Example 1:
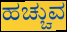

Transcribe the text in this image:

ಹಚ್ಚುವ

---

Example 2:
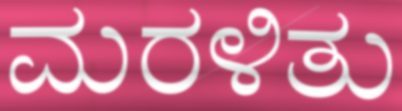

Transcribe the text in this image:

ಮರಳಿತು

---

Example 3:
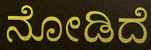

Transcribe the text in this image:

ನೋಡಿದೆ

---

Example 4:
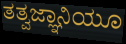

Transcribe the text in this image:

ತತ್ವಜ್ಞಾನಿಯೂ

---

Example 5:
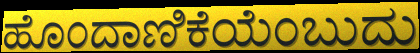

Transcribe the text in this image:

ಹೊಂದಾಣಿಕೆಯೆಂಬುದು